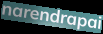
narendrapai